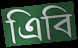
এিবি